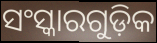
ସଂସ୍କାରଗୁଡ଼ିକ